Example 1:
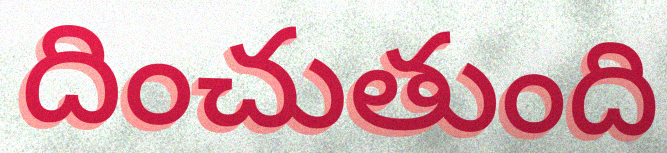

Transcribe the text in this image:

దించుతుంది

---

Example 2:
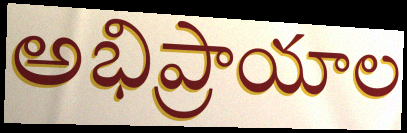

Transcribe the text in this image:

అభిప్రాయాల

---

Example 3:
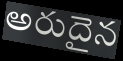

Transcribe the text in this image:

అరుదైన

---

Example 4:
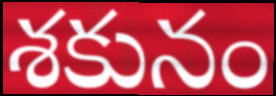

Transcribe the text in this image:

శకునం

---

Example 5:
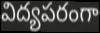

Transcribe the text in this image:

విద్యపరంగా